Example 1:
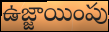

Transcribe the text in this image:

ఉజ్జాయింపు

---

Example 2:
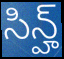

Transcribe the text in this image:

సిన్హ్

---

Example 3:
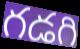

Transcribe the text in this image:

గడగి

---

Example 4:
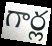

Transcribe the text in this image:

గార్ల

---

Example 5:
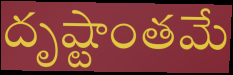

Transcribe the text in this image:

దృష్టాంతమే